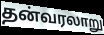
தன்வரலாறு